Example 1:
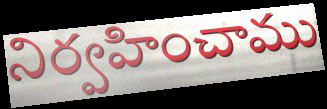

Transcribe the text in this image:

నిర్వహించాము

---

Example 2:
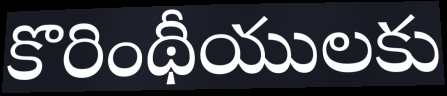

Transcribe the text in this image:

కొరింథీయులకు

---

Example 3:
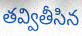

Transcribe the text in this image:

తవ్వితీసిన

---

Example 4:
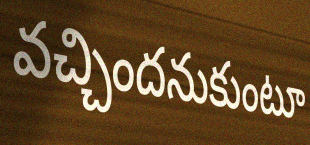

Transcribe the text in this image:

వచ్చిందనుకుంటూ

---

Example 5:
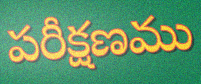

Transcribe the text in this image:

పరీక్షణము